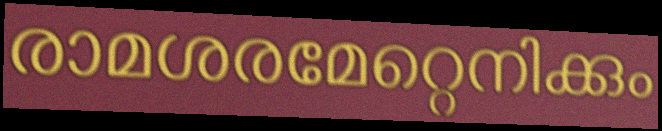
രാമശരമേറ്റെനിക്കും